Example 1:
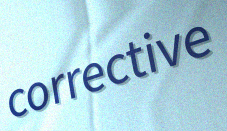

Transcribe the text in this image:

corrective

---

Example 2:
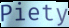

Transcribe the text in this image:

Piety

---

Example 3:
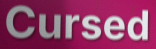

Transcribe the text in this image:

Cursed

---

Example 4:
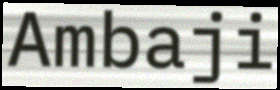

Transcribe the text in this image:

Ambaji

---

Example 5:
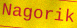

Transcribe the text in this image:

Nagorik